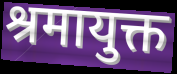
श्रमायुक्त